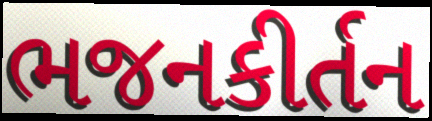
ભજનકીર્તન